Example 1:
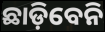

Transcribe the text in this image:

ଛାଡ଼ିବେନି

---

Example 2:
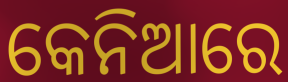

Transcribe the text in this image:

କେନିଆରେ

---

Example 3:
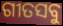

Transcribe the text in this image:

ଗୀତସବୁ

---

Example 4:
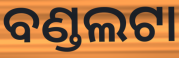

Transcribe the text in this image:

ବଣ୍ଡଲଟା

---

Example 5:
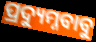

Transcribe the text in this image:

ପ୍ରଦ୍ୟୁମ୍ନବାବୁ